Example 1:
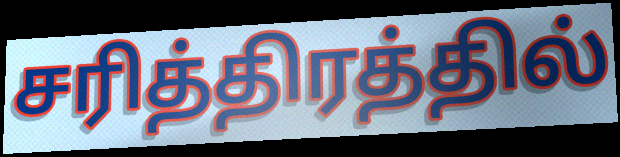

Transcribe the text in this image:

சரித்திரத்தில்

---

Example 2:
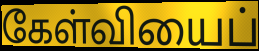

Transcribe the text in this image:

கேள்வியைப்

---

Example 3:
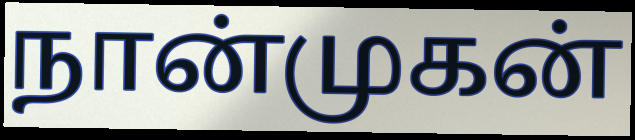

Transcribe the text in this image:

நான்முகன்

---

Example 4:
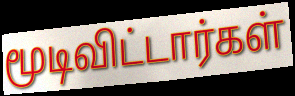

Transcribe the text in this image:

மூடிவிட்டார்கள்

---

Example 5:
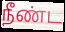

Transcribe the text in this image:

நீண்ட